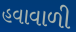
હવાવાળી